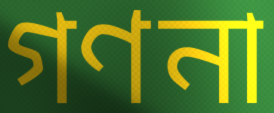
গণনা